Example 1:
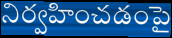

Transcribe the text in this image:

నిర్వహించడంపై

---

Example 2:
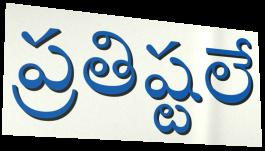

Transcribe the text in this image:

ప్రతిష్టలే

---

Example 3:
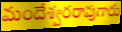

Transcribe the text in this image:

మందేశ్వరరావుగారు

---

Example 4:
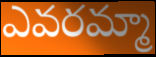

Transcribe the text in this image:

ఎవరమ్మా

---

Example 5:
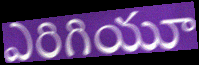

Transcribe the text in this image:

ఎరిగియూ